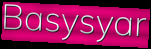
Basysyar